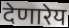
देणारेय